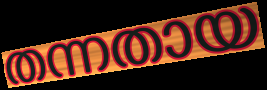
തന്നതായ